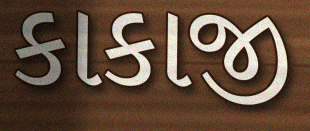
કાકાજી